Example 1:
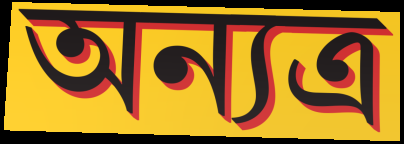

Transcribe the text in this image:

অন্যত্ৰ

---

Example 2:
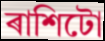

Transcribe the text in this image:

ৰাশিটো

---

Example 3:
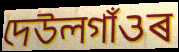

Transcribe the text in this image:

দেউলগাঁওৰ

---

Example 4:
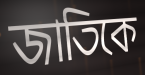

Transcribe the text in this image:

জাতিকে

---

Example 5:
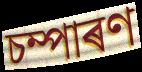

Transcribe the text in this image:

চম্পাৰণ